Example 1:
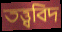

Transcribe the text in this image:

তত্ত্ববিদ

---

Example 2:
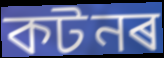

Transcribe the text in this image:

কটনৰ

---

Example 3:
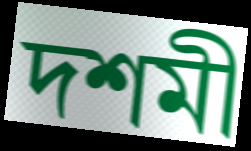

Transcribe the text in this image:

দশমী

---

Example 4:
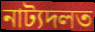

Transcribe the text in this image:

নাট্যদলত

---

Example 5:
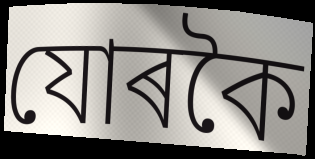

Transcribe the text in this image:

যোৰকৈ